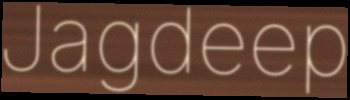
Jagdeep